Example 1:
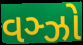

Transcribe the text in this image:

વઞ્ઝો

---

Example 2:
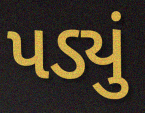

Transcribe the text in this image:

પડ્યું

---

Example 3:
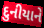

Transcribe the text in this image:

દુનીયાને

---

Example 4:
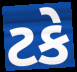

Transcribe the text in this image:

ટકે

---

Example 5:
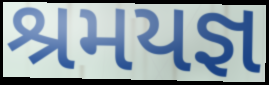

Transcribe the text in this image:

શ્રમયજ્ઞ